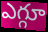
ఎగ్గూ